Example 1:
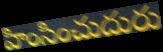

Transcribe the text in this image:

హింసించుదురు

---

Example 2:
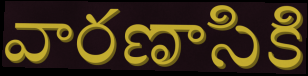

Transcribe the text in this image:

వారణాసికి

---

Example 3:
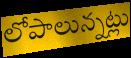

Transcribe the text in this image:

లోపాలున్నట్లు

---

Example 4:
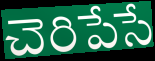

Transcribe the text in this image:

చెరిపేసే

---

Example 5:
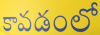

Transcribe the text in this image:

కావడంలో